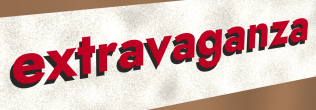
extravaganza